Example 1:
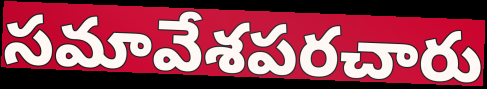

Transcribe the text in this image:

సమావేశపరచారు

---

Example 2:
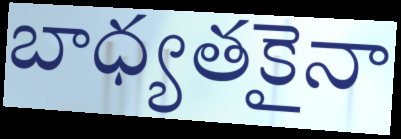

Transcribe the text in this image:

బాధ్యతకైనా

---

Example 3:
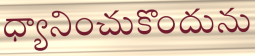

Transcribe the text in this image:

ధ్యానించుకొందును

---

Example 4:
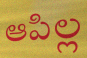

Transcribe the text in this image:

ఆపిల్ల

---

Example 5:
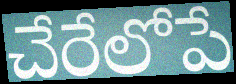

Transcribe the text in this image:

చేరేలోపే